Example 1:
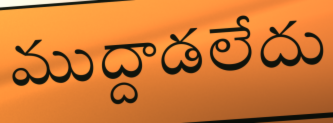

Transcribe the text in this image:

ముద్దాడలేదు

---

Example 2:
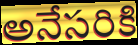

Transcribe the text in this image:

అనేసరికి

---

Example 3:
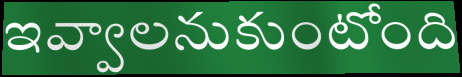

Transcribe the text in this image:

ఇవ్వాలనుకుంటోంది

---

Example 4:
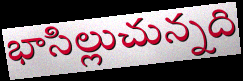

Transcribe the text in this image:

భాసిల్లుచున్నది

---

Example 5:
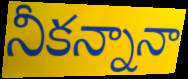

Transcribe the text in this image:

నీకన్నానా